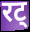
रट्